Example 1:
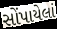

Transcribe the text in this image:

સોંપાયેલાં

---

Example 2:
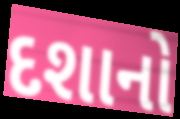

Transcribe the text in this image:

દશાનો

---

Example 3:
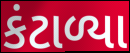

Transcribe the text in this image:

કંટાળ્યા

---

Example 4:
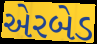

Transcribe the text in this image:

એરબેડ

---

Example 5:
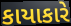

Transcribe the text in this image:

કાયાકારે